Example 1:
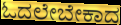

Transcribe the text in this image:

ಓದಲೇಬೇಕಾದ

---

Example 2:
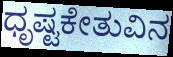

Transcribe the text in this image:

ಧೃಷ್ಟಕೇತುವಿನ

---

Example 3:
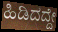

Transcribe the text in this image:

ಹಿಡಿದದ್ದೇ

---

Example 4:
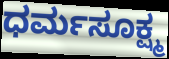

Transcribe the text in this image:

ಧರ್ಮಸೂಕ್ಷ್ಮ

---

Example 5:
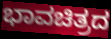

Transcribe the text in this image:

ಭಾವಚಿತ್ರದ